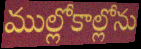
ముల్లోకాల్లోను